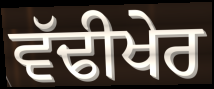
ਵੱਢੀਖੇਰ